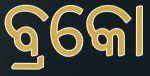
ବ୍ରକୋ